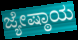
ಜ್ಯೇಷ್ಠಾಯ